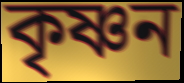
কৃষ্ণন